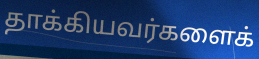
தாக்கியவர்களைக்